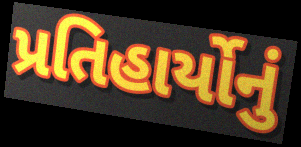
પ્રતિહાર્યોનું